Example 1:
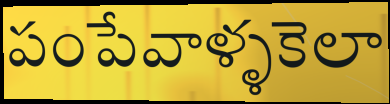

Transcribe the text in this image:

పంపేవాళ్ళకెలా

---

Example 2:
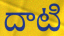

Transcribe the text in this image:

దాటి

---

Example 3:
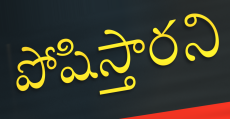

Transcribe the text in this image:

పోషిస్తారని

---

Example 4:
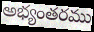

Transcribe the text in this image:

అభ్యంతరము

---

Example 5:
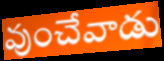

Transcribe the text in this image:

వుంచేవాడు